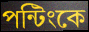
পন্টিংকে